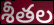
శీతల